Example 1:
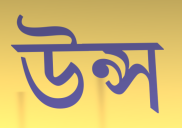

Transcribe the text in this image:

উন্স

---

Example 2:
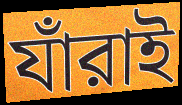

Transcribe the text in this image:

যাঁরাই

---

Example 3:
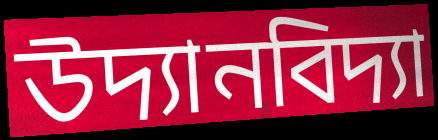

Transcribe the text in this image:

উদ্যানবিদ্যা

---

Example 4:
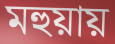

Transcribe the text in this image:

মহুয়ায়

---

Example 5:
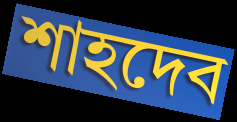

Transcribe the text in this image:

শাহদেব